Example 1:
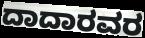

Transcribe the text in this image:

ದಾದಾರವರ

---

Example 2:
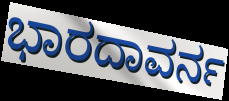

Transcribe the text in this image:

ಭಾರದಾವರ್ನ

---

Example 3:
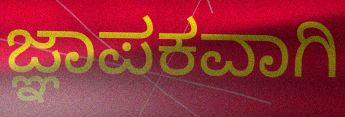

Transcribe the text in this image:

ಜ್ಞಾಪಕವಾಗಿ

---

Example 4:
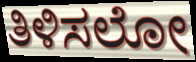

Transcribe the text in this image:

ತಿಳಿಸಲೋ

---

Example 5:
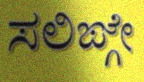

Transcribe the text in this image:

ಸಲಿಙ್ಗೇ